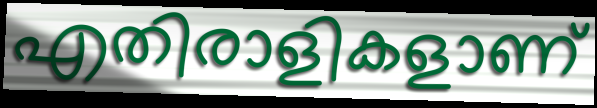
എതിരാളികളാണ്